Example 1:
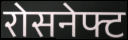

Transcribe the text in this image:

रोसनेफ्ट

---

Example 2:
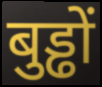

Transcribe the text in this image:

बुड्ढों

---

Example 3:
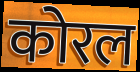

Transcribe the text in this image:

कोरल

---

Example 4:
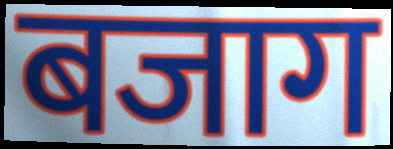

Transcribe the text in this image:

बजाग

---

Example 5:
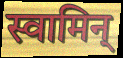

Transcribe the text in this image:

स्वामिन्